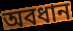
অবধান